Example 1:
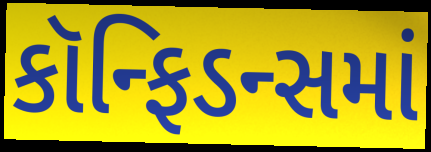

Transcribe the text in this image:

કૉન્ફિડન્સમાં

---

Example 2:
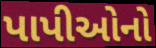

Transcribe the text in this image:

પાપીઓનો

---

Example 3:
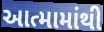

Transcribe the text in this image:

આત્મામાંથી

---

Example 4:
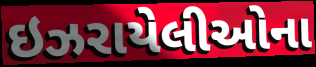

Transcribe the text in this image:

ઇઝરાયેલીઓના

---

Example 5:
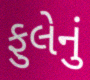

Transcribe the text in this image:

ફુલેનું